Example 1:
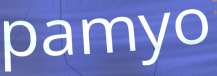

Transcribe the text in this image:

pamyo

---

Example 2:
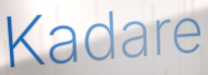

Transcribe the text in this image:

Kadare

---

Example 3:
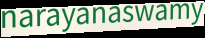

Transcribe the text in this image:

narayanaswamy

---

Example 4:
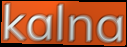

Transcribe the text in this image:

kalna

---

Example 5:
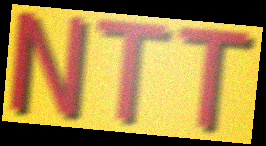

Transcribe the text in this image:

NTT